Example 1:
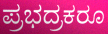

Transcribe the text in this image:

ಪ್ರಭದ್ರಕರೂ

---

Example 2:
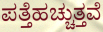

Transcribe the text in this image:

ಪತ್ತೆಹಚ್ಚುತ್ತವೆ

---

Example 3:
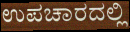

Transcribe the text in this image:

ಉಪಚಾರದಲ್ಲಿ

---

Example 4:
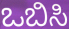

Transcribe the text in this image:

ಒಬಿಸಿ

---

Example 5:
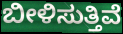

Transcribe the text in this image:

ಬೀಳಿಸುತ್ತಿವೆ